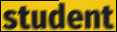
student